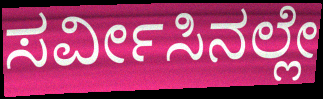
ಸರ್ವೀಸಿನಲ್ಲೇ